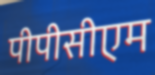
पीपीसीएम